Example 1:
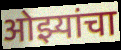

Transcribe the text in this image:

ओझ्यांचा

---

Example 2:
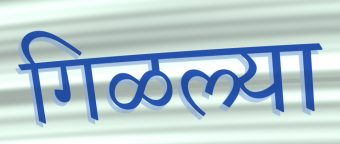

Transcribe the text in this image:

गिळल्या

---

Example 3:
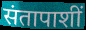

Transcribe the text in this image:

संतापाशीं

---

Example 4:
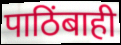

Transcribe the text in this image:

पाठिंबाही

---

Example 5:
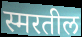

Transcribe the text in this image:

स्मरतील